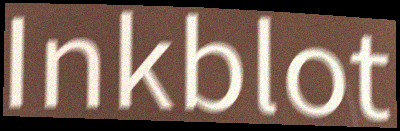
Inkblot